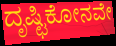
ದೃಷ್ಟಿಕೋನವೇ